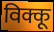
विक्कू